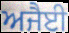
ਅਜੈਈ